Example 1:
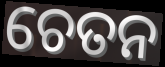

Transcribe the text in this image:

ଚେତନ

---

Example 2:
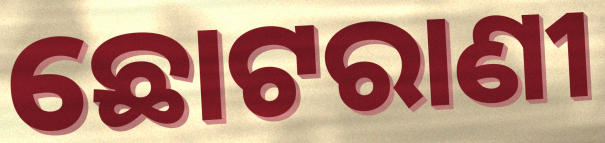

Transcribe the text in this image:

ଛୋଟରାଣୀ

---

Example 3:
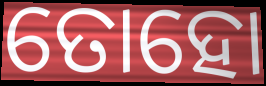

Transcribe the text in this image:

ତୋହୋ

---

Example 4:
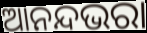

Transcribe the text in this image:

ଆନନ୍ଦଭରା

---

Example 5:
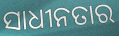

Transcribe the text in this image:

ସାଧୀନତାର